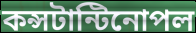
কন্সটান্টিনোপল